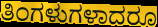
ತಿಂಗಳುಗಳಾದರೂ